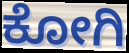
ಕೋಗಿ